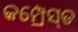
କମ୍ପ୍ରେସ୍‌ଡ